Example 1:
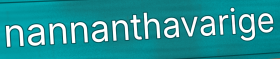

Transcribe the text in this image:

nannanthavarige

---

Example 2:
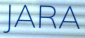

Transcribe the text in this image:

JARA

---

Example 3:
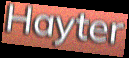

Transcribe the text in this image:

Hayter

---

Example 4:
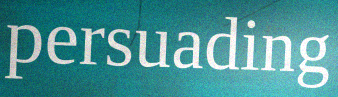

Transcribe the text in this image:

persuading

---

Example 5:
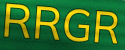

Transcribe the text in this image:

RRGR